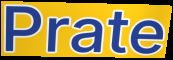
Prate